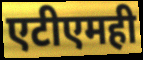
एटीएमही